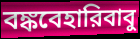
বঙ্কবেহারিবাবু